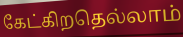
கேட்கிறதெல்லாம்